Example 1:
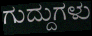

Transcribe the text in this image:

ಗುದ್ದುಗಳು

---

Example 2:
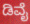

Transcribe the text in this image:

ಡಿವೈ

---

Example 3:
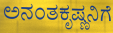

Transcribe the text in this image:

ಅನಂತಕೃಷ್ಣನಿಗೆ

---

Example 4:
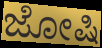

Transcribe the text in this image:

ಜೋಷಿ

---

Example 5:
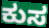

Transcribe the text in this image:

ಕುಸ